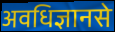
अवधिज्ञानसे